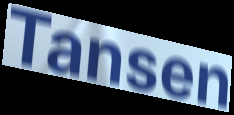
Tansen